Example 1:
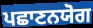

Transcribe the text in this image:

ਪਛਾਣਨਯੋਗ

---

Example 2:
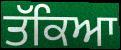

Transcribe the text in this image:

ਤੱਕਿਆ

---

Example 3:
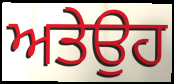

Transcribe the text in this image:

ਅਤੇਉਹ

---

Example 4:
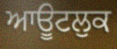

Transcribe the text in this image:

ਆਊਟਲੁਕ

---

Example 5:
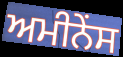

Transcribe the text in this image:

ਅਮੀਨੇਂਸ